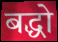
बद्धो